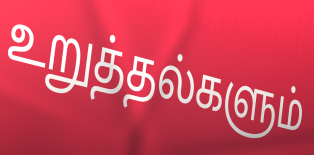
உறுத்தல்களும்